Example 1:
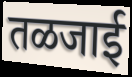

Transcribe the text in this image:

तळजाई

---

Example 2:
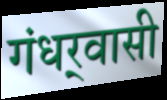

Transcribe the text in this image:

गंधर्वासी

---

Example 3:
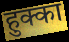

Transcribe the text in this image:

हुक्का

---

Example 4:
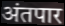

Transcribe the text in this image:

अंतपार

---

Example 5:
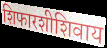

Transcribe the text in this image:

शिफारशीशिवाय